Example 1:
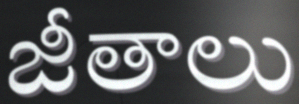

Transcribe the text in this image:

జీతాలు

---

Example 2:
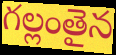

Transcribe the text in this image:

గల్లంతైన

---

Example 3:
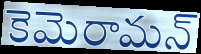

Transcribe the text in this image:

కెమెరామన్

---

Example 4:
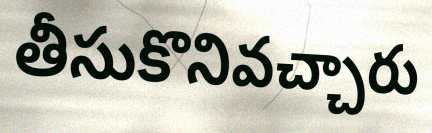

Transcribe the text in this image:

తీసుకొనివచ్చారు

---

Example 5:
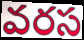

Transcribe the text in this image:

వరస